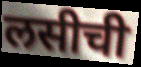
लसीची